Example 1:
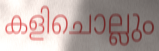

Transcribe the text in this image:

കളിചൊല്ലും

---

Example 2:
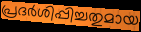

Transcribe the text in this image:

പ്രദർശിപ്പിച്ചതുമായ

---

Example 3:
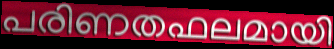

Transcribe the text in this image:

പരിണതഫലമായി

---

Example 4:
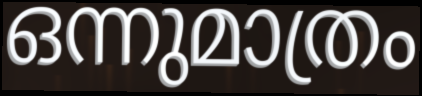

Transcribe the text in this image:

ഒന്നുമാത്രം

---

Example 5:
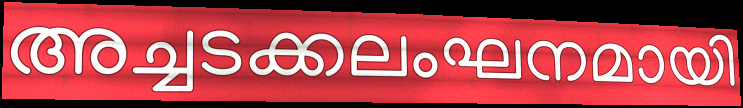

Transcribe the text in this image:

അച്ചടക്കലംഘനമായി